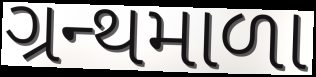
ગ્રન્થમાળા